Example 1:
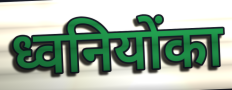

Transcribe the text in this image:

ध्वनियोंका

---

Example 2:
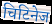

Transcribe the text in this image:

चिटिनेज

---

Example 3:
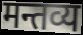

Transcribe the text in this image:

मन्तव्य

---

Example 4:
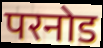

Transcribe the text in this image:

परनोड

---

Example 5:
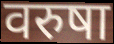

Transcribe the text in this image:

वरुषा